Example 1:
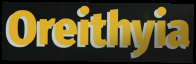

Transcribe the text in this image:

Oreithyia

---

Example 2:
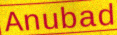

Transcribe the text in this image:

Anubad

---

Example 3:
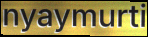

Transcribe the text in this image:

nyaymurti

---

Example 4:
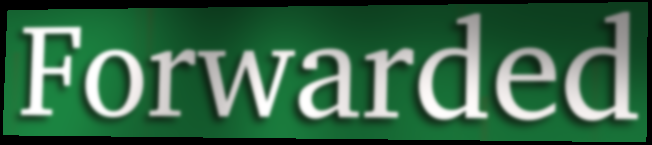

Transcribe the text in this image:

Forwarded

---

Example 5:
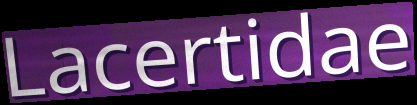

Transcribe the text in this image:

Lacertidae